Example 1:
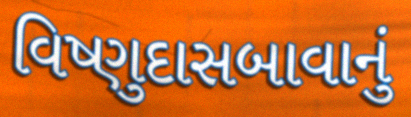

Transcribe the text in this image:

વિષ્ણુદાસબાવાનું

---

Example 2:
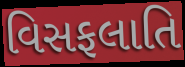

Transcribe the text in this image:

વિસફલાતિ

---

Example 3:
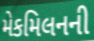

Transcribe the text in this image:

મેકમિલનની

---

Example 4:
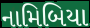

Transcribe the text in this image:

નામિબિયા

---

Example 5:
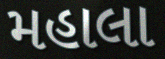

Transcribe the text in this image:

મહાલા